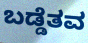
ಬಡ್ಡೆತವ